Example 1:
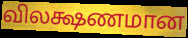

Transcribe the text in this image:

விலக்ஷணமான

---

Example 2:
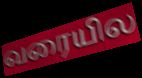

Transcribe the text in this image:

வரையில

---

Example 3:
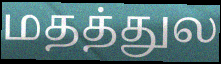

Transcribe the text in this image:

மதத்துல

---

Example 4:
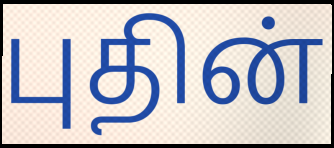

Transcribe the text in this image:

புதின்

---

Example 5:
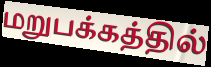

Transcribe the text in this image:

மறுபக்கத்தில்